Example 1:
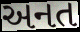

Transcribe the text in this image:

અનત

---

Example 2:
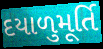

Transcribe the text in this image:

દયાળુમૂર્તિ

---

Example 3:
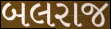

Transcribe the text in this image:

બલરાજ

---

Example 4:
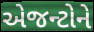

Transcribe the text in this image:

એજન્ટોને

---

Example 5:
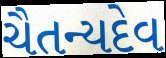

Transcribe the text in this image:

ચૈતન્યદેવ